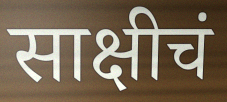
साक्षीचं